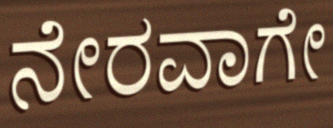
ನೇರವಾಗೇ